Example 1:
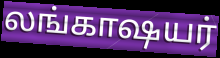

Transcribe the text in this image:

லங்காஷயர்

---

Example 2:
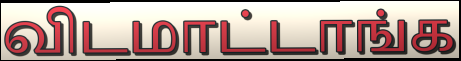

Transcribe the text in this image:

விடமாட்டாங்க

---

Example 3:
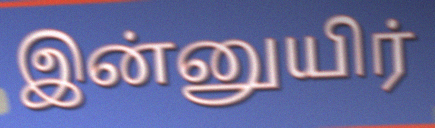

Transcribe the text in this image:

இன்னுயிர்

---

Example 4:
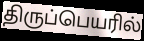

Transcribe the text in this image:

திருப்பெயரில்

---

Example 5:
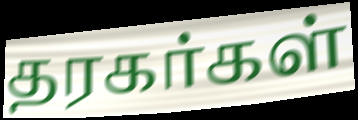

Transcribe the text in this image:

தரகர்கள்